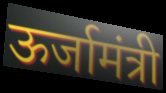
ऊर्जामंत्री